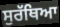
ਸੁਰੱਥਿਆ